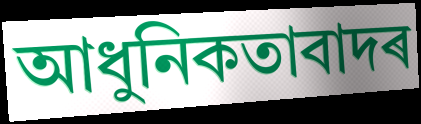
আধুনিকতাবাদৰ